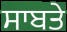
ਸਾਬਤੇ